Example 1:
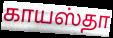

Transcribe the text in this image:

காயஸ்தா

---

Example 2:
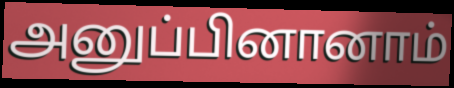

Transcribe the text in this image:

அனுப்பினானாம்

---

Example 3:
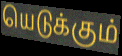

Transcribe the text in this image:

யெடுக்கும்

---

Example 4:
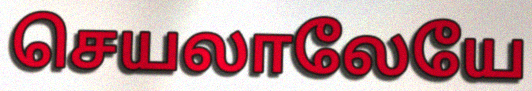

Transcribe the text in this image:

செயலாலேயே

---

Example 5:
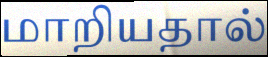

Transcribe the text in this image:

மாறியதால்